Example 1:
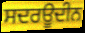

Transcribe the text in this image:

ਸਦਰਊਦੀਨ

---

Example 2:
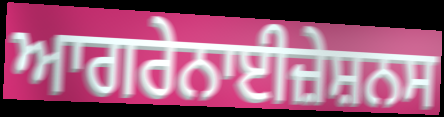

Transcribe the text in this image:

ਆਗਰੇਨਾਈਜ਼ੇਸ਼ਨਸ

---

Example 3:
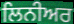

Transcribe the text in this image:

ਲਿਨੀਅਰ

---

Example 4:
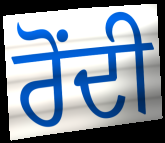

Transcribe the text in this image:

ਰੋਂਦੀ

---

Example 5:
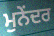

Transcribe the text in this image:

ਮੁਨੇਂਦਰ